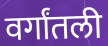
वर्गांतली